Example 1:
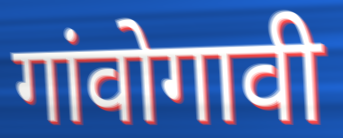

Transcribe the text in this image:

गांवोगावी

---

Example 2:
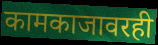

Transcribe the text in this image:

कामकाजावरही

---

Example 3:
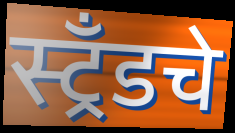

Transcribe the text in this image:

स्ट्रँडचे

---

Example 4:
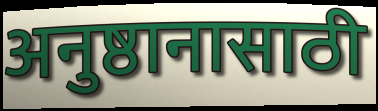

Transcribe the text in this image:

अनुष्ठानासाठी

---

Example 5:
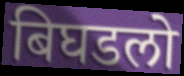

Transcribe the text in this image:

बिघडलो